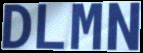
DLMN